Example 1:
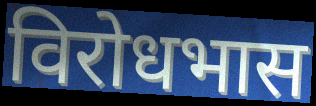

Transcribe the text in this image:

विरोधभास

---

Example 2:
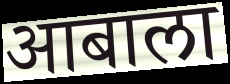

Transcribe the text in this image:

आबाला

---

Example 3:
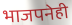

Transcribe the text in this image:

भाजपनेही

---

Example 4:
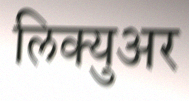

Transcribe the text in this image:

लिक्युअर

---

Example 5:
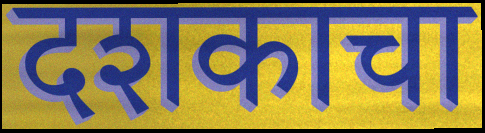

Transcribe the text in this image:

दशकाचा